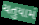
ચતુયામં